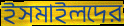
ইসমাইলদের